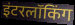
इंटरलॉकिंग